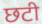
छटी